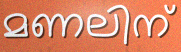
മണലിന്